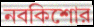
নবকিশোর